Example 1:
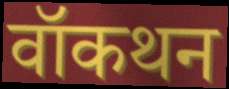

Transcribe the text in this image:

वॉकथन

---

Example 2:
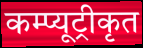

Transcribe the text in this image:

कम्प्यूट्रीकृत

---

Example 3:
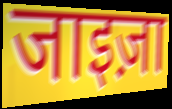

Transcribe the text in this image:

जाइज़ा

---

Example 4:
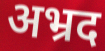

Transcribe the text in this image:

अभ्रद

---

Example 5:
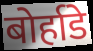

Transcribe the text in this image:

बोर्हाडे